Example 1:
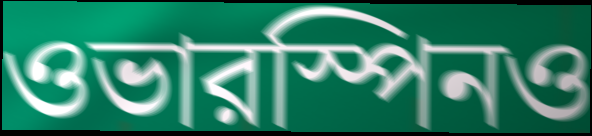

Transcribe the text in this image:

ওভারস্পিনও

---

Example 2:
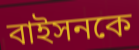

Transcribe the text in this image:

বাইসনকে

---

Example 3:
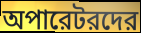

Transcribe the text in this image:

অপারেটরদের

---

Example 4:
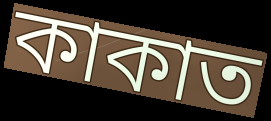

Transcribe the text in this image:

কাকাত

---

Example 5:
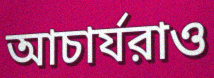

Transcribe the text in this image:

আচার্যরাও